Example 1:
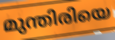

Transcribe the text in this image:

മുന്തിരിയെ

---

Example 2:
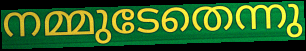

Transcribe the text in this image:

നമ്മുടേതെന്നു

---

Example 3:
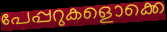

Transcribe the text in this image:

പേപ്പറുകളൊക്കെ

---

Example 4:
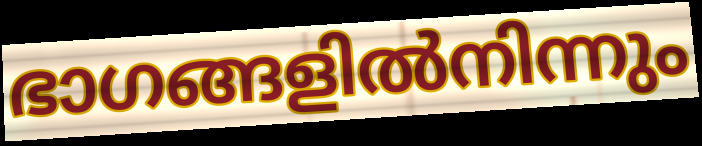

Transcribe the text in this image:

ഭാഗങ്ങളിൽനിന്നും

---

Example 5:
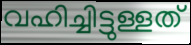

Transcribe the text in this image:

വഹിച്ചിട്ടുള്ളത്